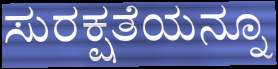
ಸುರಕ್ಷತೆಯನ್ನೂ